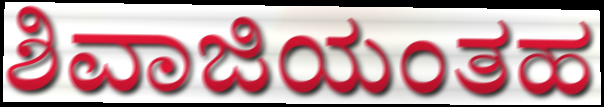
ಶಿವಾಜಿಯಂತಹ